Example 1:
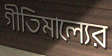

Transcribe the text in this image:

গীতিমাল্যের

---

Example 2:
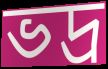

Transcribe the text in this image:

ভদ্র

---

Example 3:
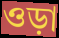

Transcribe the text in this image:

ওড়া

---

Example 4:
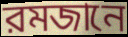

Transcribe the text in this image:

রমজানে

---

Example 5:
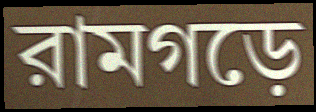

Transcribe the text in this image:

রামগড়ে